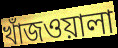
খাঁজওয়ালা